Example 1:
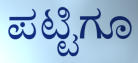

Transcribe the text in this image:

ಪಟ್ಟಿಗೂ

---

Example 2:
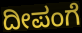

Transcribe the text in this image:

ದೀಪಂಗೆ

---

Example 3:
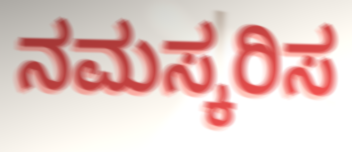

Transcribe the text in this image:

ನಮಸ್ಕರಿಸ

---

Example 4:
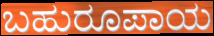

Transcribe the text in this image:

ಬಹುರೂಪಾಯ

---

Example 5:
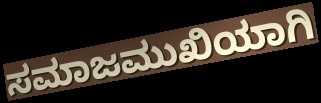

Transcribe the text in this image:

ಸಮಾಜಮುಖಿಯಾಗಿ